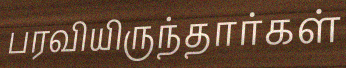
பரவியிருந்தார்கள்